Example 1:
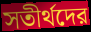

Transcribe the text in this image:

সতীর্থদের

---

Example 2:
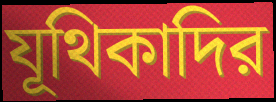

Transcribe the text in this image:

যূথিকাদির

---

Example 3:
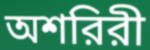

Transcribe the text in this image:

অশরিরী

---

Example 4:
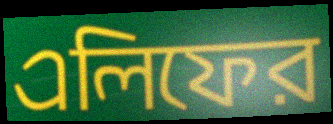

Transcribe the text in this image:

এলিফের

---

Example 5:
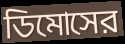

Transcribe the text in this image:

ডিমোসের